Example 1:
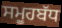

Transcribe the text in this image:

ਸਮੂਹਬੱਧ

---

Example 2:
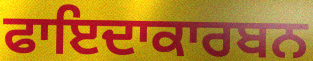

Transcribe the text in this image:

ਫਾਇਦਾਕਾਰਬਨ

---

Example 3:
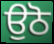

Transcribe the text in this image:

ਉਠੋ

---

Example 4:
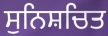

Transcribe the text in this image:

ਸੁਨਿਸ਼ਚਿਤ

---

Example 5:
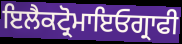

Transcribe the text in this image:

ਇਲੈਕਟ੍ਰੋਮਾਇਓਗ੍ਰਾਫੀ